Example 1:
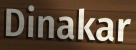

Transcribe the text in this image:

Dinakar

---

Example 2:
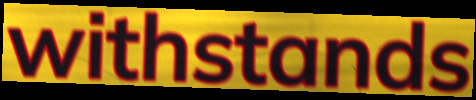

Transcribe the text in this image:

withstands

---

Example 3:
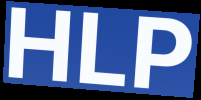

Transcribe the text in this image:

HLP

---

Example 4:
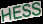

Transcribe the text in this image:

HESS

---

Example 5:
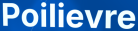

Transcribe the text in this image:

Poilievre